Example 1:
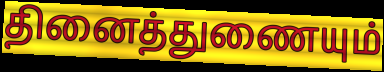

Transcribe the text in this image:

தினைத்துணையும்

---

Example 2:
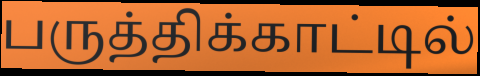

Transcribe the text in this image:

பருத்திக்காட்டில்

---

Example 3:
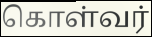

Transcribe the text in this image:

கொள்வர்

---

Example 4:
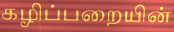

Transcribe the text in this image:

கழிப்பறையின்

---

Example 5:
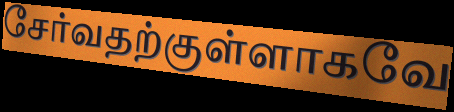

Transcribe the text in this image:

சேர்வதற்குள்ளாகவே